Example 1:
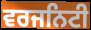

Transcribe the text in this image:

ਵਰਜਨਿਟੀ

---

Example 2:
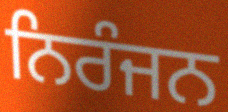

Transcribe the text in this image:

ਨਿਰੰਜਨ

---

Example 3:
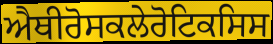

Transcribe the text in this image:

ਐਥੀਰੋਸਕਲੇਰੋਟਿਕਸਿਸ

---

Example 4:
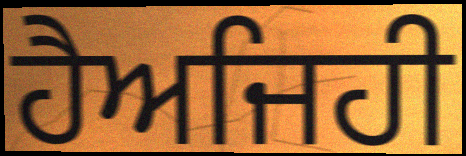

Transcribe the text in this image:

ਹੈਅਜਿਹੀ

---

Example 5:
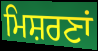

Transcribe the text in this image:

ਮਿਸ਼ਰਣਾਂ